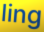
ling